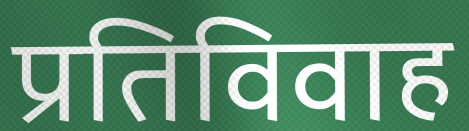
प्रतिविवाह